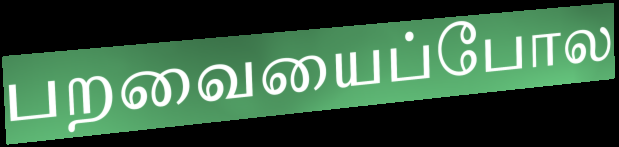
பறவையைப்போல